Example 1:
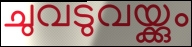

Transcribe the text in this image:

ചുവടുവയ്ക്കും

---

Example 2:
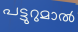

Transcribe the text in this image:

പട്ടുറുമാൽ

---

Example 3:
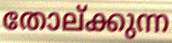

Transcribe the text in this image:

തോല്ക്കുന്ന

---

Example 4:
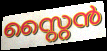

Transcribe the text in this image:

സ്റ്റൈൻ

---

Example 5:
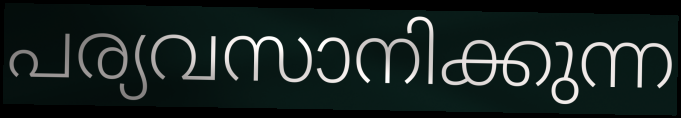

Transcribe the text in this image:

പര്യവസാനിക്കുന്ന